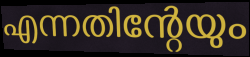
എന്നതിന്റേയും